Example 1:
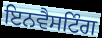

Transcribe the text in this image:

ਇਨਵੈਸਟਿੰਗ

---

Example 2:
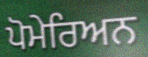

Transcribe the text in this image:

ਪੋਮੇਰਿਅਨ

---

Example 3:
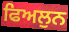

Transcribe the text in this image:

ਫਿਅਲੁਨ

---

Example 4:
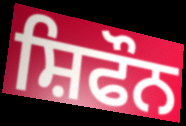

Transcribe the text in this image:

ਸ਼ਿਫੌਨ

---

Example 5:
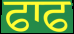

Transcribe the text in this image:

ਫਾਫ